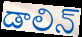
డాలిన్